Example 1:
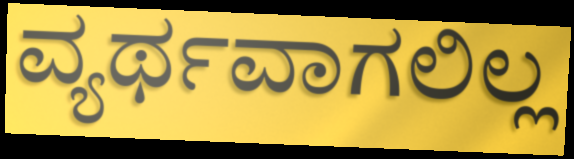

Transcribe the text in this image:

ವ್ಯರ್ಥವಾಗಲಿಲ್ಲ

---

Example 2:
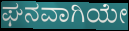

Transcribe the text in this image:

ಘನವಾಗಿಯೇ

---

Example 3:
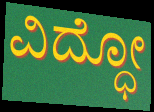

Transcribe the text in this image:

ವಿದ್ಧೋ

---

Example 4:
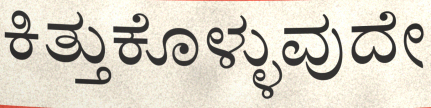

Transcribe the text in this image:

ಕಿತ್ತುಕೊಳ್ಳುವುದೇ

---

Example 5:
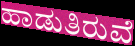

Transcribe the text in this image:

ಹಾಡುತಿರುವೆ